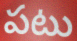
పటు